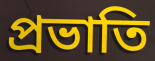
প্রভাতি